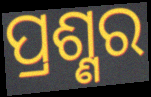
ପ୍ରଶ୍ଣର